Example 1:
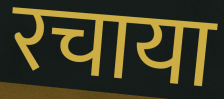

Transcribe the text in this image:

रचाया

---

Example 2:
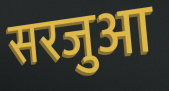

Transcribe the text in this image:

सरजुआ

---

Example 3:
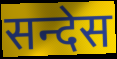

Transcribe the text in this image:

सन्देस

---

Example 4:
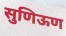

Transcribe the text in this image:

सुणिऊण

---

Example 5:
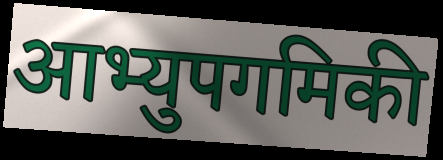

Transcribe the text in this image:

आभ्युपगमिकी